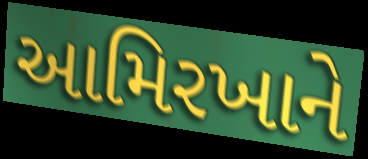
આમિરખાને